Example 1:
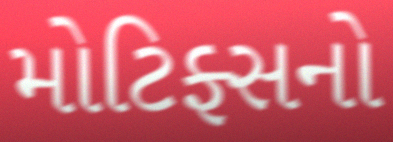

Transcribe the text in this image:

મોટિફ્સનો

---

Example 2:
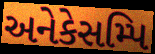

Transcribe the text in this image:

અનેકેસમ્પિ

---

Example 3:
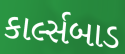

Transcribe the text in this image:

કાર્લ્સબાડ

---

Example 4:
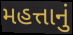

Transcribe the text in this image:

મહત્તાનું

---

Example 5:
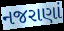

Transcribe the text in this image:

નજરાણાં